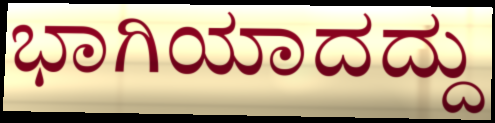
ಭಾಗಿಯಾದದ್ದು